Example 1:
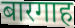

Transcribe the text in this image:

बारगाह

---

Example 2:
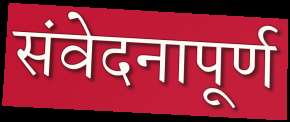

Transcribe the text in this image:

संवेदनापूर्ण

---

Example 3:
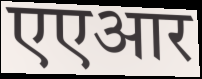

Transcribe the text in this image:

एएआर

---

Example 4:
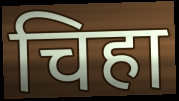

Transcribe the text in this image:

चिहा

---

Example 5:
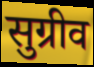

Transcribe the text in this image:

सुग्रीव